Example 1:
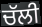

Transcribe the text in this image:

ਚੱਲੀ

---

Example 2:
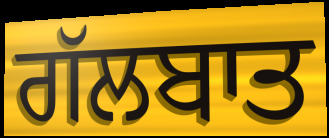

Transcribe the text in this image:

ਗੱਲਬਾਤ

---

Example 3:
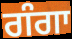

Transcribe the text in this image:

ਗੰਗਾ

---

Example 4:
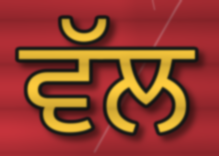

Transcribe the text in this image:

ਵੱਲ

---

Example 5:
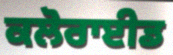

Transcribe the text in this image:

ਕਲੋਰਾਈਡ